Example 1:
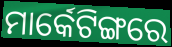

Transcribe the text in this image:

ମାର୍କେଟିଙ୍ଗରେ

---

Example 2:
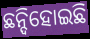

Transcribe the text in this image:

ଛନ୍ଦିହୋଇଛି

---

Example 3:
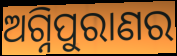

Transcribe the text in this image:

ଅଗ୍ନିପୁରାଣର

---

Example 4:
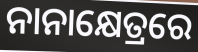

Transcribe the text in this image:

ନାନାକ୍ଷେତ୍ରରେ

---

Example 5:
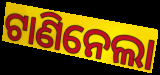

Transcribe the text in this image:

ଟାଣିନେଲା